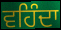
ਵਹਿੰਦਾ